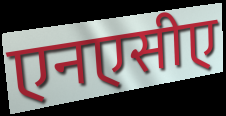
एनएसीए